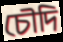
চৌদি